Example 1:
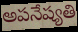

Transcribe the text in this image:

అపనేష్యతి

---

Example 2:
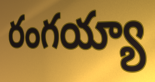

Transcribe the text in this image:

రంగయ్యా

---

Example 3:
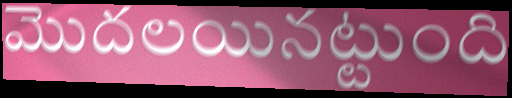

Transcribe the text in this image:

మొదలయినట్టుంది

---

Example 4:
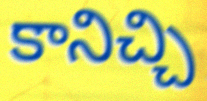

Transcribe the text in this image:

కానిచ్చి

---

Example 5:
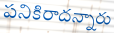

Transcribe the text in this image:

పనికిరాదన్నారు